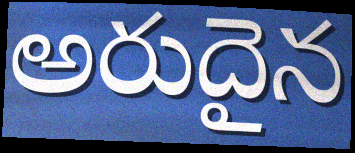
అరుదైన